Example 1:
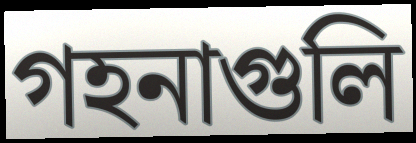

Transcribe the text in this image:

গহনাগুলি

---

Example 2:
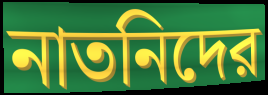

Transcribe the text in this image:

নাতনিদের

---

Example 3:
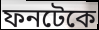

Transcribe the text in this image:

ফনটেকে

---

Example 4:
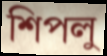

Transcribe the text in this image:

শিপলু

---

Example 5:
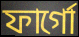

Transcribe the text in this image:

ফার্গো